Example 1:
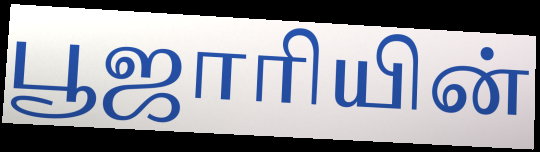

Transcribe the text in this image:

பூஜாரியின்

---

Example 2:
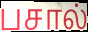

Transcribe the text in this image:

பசால்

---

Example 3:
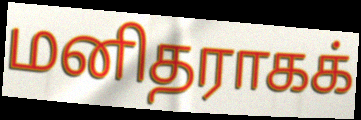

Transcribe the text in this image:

மனிதராகக்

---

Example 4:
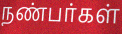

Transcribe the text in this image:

நண்பர்கள்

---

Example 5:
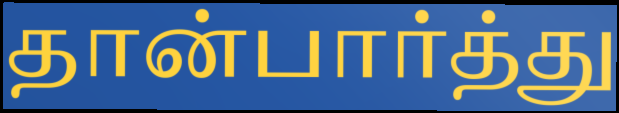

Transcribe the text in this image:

தான்பார்த்து